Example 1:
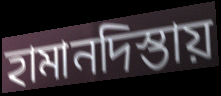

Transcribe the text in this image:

হামানদিস্তায়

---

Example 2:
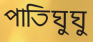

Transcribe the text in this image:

পাতিঘুঘু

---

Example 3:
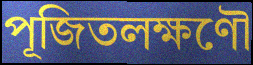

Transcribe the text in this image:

পূজিতলক্ষণৌ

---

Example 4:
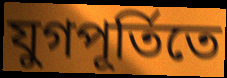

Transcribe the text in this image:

যুগপূর্তিতে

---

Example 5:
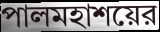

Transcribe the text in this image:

পালমহাশয়ের